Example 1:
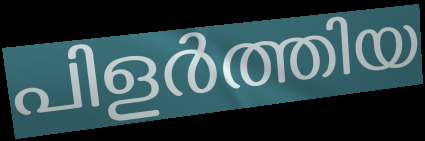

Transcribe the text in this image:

പിളർത്തിയ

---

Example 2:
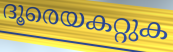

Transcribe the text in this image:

ദൂരെയകറ്റുക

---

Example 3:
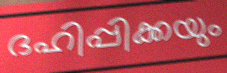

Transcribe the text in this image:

ദഹിപ്പിക്കയും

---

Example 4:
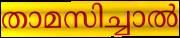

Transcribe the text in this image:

താമസിച്ചാൽ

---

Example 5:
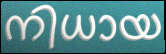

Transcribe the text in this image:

നിധായ